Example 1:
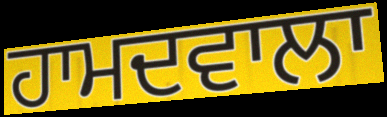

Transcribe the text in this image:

ਹਾਮਦਵਾਲਾ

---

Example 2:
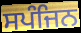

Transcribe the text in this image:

ਸਪੰਜਿਨ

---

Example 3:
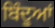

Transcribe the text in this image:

ਬਿੰਦੂਆਂ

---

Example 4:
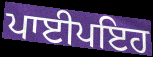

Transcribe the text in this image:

ਪਾਈਪਇਹ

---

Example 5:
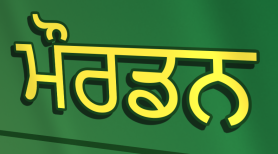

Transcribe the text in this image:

ਮੌਰਡਨ